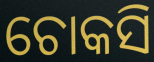
ଚୋକସି